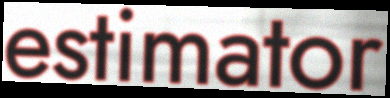
estimator